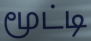
மூட்டி